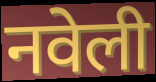
नवेली